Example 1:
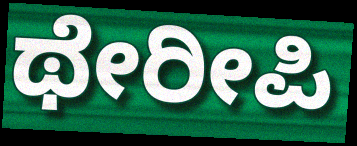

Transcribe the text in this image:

ಥೇರೀಪಿ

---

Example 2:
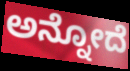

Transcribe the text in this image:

ಅನ್ನೋದೆ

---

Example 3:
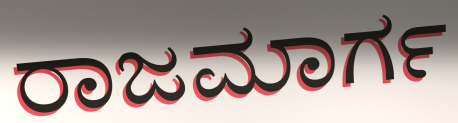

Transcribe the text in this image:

ರಾಜಮಾರ್ಗ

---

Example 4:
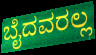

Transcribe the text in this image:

ಬೈದವರಲ್ಲ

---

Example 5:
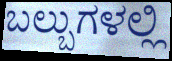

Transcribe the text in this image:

ಬಲ್ಬುಗಳಲ್ಲಿ